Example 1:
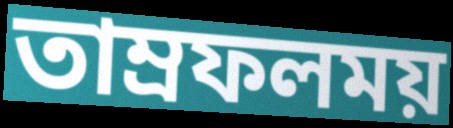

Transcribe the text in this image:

তাম্রফলময়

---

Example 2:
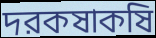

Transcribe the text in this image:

দরকষাকষি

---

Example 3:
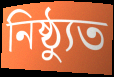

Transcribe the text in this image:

নিষ্ঠ্যুত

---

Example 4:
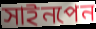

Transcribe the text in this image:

সাইনপেন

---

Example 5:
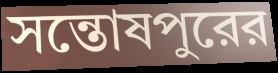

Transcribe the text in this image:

সন্তোষপুরের